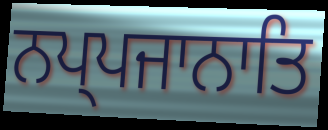
ਨਪ੍ਪਜਾਨਾਤਿ